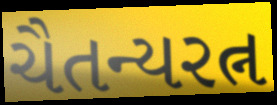
ચૈતન્યરત્ન